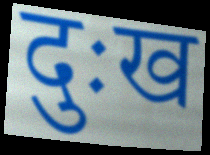
दुःख